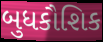
બુધકૌશિક